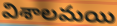
విశాలమయి